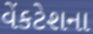
વેંકટેશના